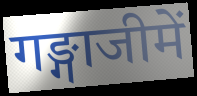
गङ्गाजीमें